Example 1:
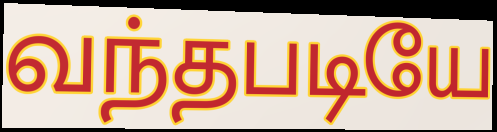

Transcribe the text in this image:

வந்தபடியே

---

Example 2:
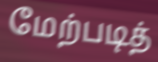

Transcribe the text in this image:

மேற்படித்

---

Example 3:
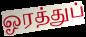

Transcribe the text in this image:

ஓரத்துப்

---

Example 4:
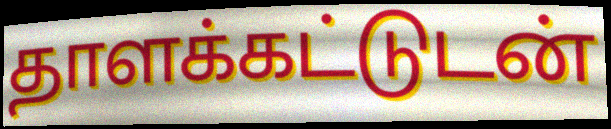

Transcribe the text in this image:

தாளக்கட்டுடன்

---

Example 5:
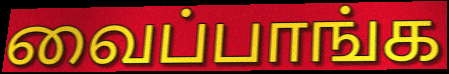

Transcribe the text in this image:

வைப்பாங்க